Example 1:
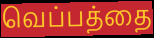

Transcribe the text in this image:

வெப்பத்தை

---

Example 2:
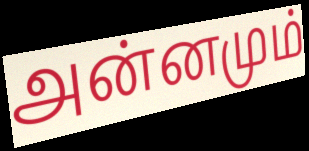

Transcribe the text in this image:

அன்னமும்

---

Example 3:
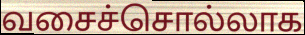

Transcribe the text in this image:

வசைச்சொல்லாக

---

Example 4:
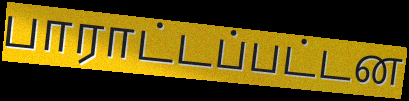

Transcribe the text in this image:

பாராட்டப்பட்டன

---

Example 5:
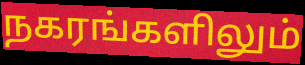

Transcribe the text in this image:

நகரங்களிலும்